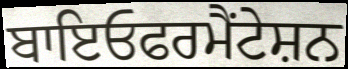
ਬਾਇਓਫਰਮੈਂਟੇਸ਼ਨ